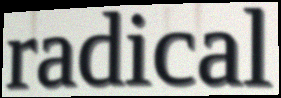
radical